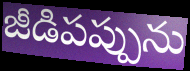
జీడిపప్పును